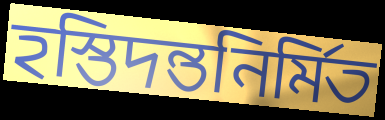
হস্তিদন্তনির্মিত